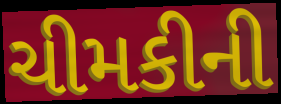
ચીમકીની